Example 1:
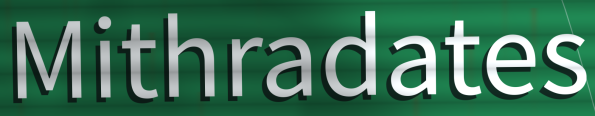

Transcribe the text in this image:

Mithradates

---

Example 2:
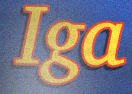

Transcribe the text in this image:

Iga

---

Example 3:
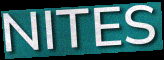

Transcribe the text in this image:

NITES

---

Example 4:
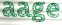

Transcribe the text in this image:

aage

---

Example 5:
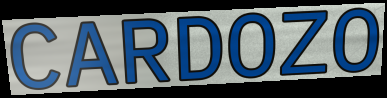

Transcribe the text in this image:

CARDOZO